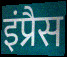
इंप्रैस